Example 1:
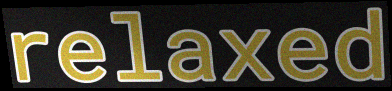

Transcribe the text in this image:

relaxed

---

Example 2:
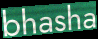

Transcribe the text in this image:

bhasha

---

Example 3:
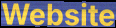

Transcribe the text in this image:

Website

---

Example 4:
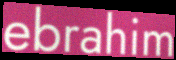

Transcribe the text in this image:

ebrahim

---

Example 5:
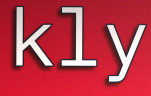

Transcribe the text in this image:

kly